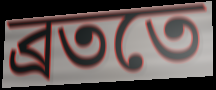
ব্রততে